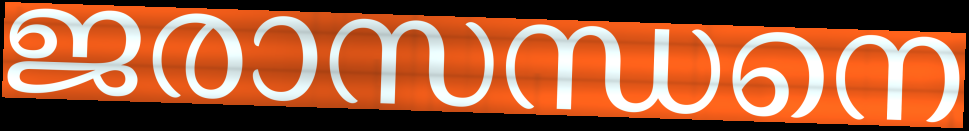
ജരാസന്ധനെ